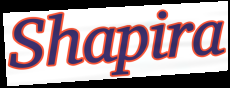
Shapira